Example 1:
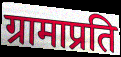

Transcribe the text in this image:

ग्रामाप्रति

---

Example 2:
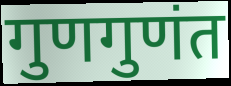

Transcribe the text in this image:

गुणगुणंत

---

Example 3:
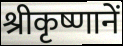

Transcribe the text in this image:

श्रीकृष्णानें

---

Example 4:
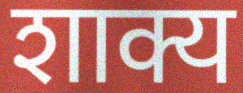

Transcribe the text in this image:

शाक्य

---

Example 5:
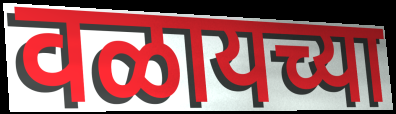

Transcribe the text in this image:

वळायच्या